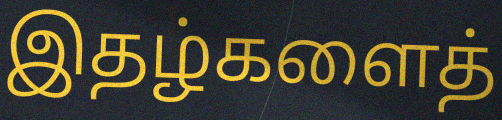
இதழ்களைத்